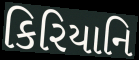
કિરિયાનિ